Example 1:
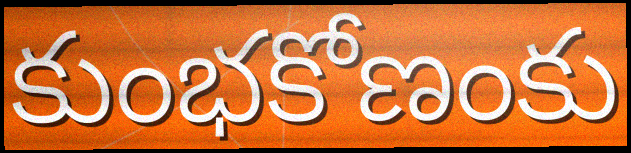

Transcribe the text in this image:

కుంభకోణంకు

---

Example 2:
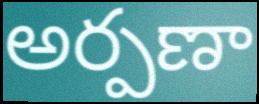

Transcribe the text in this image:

అర్పణా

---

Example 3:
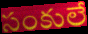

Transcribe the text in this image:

సంకులే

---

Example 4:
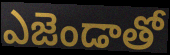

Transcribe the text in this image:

ఎజెండాతో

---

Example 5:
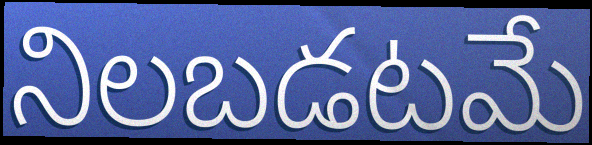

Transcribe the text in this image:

నిలబడటమే